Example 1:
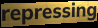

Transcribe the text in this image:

repressing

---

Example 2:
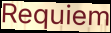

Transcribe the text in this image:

Requiem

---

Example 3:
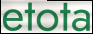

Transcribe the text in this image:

etota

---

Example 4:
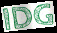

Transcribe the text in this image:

IDG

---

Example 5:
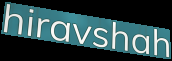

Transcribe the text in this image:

hiravshah